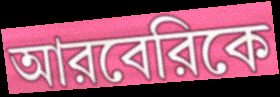
আরবেরিকে